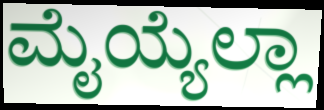
ಮೈಯ್ಯೆಲ್ಲಾ